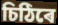
চিঠিৰে